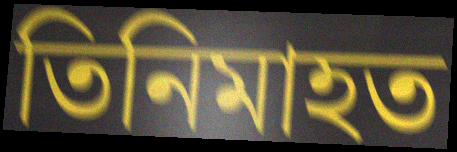
তিনিমাহত